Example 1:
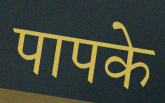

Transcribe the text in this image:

पापके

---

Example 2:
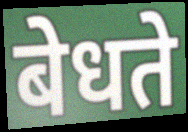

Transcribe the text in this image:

बेधते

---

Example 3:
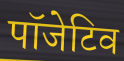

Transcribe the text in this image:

पॉजेटिव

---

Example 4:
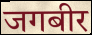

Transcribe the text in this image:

जगबीर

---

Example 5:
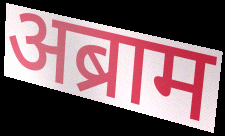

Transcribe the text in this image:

अब्राम